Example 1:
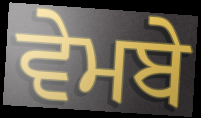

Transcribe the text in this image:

ਵੇਮਬੇ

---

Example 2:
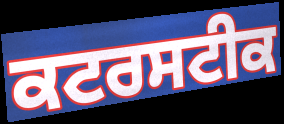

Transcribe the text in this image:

ਕਟਰਸਟੀਕ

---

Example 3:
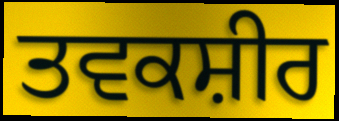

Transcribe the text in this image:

ਤਵਕਸ਼ੀਰ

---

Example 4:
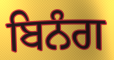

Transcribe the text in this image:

ਬਿਨੰਗ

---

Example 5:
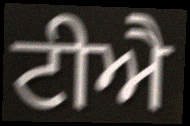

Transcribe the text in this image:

ਟੀਐ